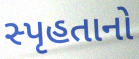
સ્પૃહતાનો